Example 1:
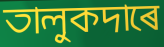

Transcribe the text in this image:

তালুকদাৰে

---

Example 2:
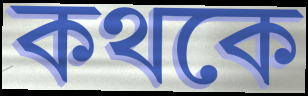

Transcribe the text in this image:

কথকে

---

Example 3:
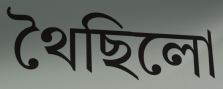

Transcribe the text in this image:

থৈছিলো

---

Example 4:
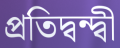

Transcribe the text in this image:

প্ৰতিদ্বন্দ্বী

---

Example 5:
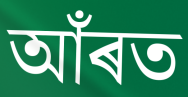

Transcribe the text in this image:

আঁৰত